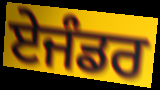
ਏਜੰਡਰ